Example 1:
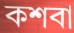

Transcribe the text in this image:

কশবা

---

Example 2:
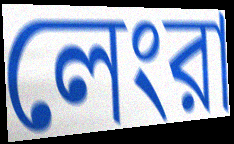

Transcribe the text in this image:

লেংরা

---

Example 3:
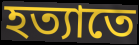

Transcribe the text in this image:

হত্যাতে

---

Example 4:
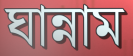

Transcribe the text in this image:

ঘান্নাম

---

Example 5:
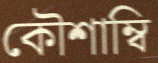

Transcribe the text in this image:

কৌশাম্বি